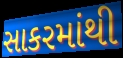
સાકરમાંથી